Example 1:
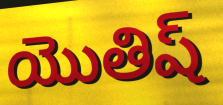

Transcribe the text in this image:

యొతిష్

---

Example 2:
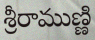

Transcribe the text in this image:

శ్రీరాముణ్ణి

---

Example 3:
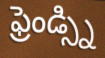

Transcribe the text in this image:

ఫ్రెండ్స్ని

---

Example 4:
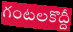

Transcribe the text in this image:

గంటలకొద్దీ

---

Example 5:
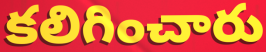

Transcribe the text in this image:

కలిగించారు